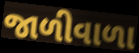
જાળીવાળા